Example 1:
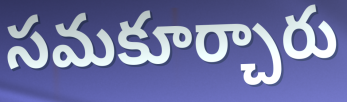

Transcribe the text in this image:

సమకూర్చారు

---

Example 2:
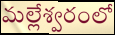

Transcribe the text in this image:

మల్లేశ్వరంలో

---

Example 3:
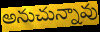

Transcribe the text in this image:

అనుచున్నావు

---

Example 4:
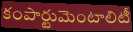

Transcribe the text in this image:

కంపార్టుమెంటాలిటీ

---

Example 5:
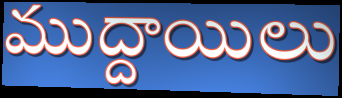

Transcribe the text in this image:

ముద్దాయిలు